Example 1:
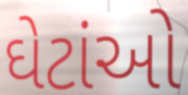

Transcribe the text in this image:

ઘેટાંઓ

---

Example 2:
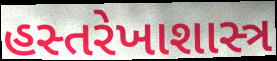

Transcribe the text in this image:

હસ્તરેખાશાસ્ત્ર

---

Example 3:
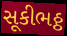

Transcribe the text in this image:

સૂકીભઠ્ઠ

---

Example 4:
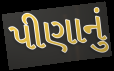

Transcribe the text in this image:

પીણાનું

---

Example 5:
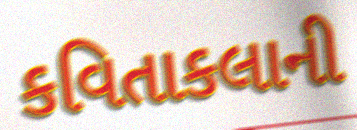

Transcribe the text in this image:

કવિતાકલાની